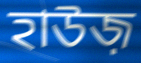
হাউজ়